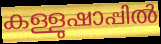
കള്ളുഷാപ്പിൽ